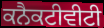
ਕਨੈਕਟੀਵੀਟੀ